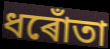
ধৰোঁতা